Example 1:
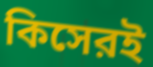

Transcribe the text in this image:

কিসেরই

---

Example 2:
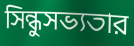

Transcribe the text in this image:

সিন্ধুসভ্যতার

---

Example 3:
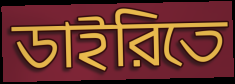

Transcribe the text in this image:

ডাইরিতে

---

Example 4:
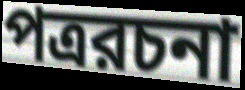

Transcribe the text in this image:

পত্ররচনা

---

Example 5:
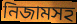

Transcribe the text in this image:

নিজামসহ